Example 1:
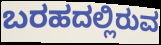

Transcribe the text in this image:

ಬರಹದಲ್ಲಿರುವ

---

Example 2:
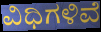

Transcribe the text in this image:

ವಿಧಿಗಳಿವೆ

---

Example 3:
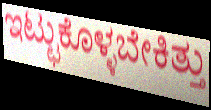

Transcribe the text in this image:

ಇಟ್ಟುಕೊಳ್ಳಬೇಕಿತ್ತು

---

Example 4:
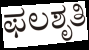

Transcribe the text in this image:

ಫಲಶೃತಿ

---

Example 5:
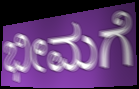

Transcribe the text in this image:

ಭೀಮಗೆ